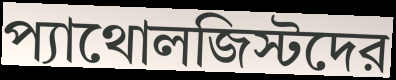
প্যাথোলজিস্টদের